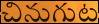
చినుగుట